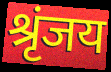
श्रृंजय